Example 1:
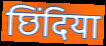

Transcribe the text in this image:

छिंदिया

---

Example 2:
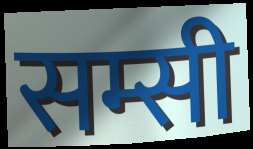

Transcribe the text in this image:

सम्सी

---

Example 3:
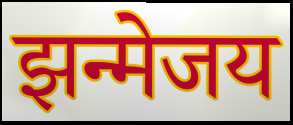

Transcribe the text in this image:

झन्मेजय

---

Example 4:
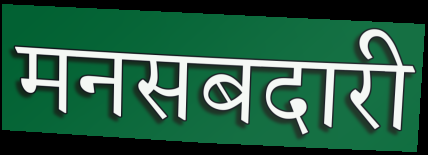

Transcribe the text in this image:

मनसबदारी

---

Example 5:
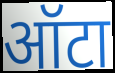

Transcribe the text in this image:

ऑटा